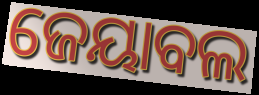
ଜେୟାବଲ